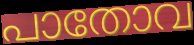
പാതോവ